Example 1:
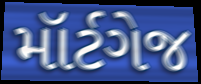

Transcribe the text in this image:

મૉર્ટગેજ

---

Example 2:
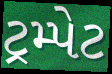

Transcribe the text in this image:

ટ્રમ્પેટ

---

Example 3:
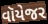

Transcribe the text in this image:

વૉયેજર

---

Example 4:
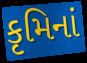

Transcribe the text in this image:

કૃમિનાં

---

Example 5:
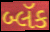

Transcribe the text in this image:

બ્લૅક